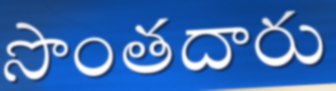
సొంతదారు